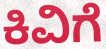
ಕಿವಿಗೆ